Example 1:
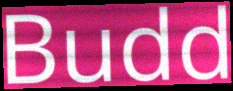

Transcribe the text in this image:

Budd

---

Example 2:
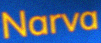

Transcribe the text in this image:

Narva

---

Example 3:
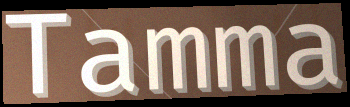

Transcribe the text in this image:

Tamma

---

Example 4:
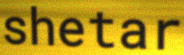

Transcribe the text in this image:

shetar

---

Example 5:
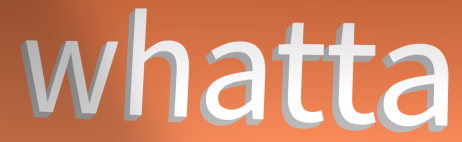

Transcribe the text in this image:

whatta